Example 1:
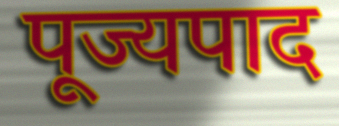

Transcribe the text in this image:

पूज्यपाद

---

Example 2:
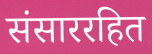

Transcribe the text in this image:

संसाररहित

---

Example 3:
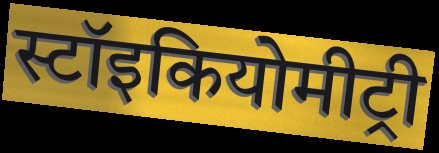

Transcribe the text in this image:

स्टॉइकियोमीट्री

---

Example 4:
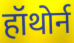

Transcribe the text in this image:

हॉथोर्न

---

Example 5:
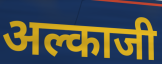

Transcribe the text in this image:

अल्काजी